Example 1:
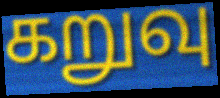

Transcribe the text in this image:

கறுவு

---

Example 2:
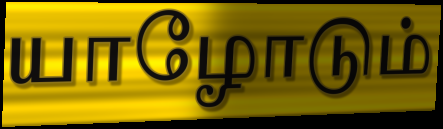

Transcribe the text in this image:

யாழோடும்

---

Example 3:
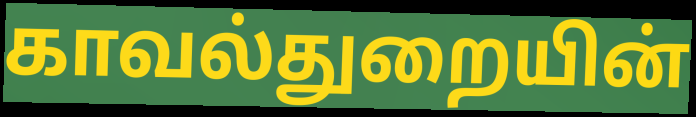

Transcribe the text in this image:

காவல்துறையின்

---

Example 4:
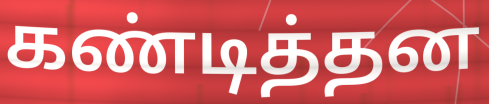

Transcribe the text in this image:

கண்டித்தன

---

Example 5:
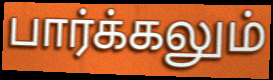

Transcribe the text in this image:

பார்க்கலும்